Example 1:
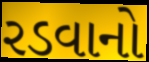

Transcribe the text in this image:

રડવાનો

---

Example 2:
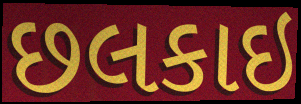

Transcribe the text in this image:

છલકાઇ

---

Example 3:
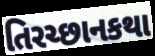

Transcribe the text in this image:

તિરચ્છાનકથા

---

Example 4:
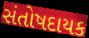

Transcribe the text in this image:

સંતોષદાયક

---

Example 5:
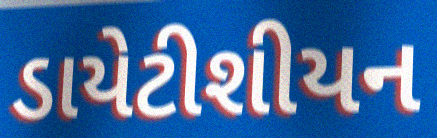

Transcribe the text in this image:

ડાયેટીશીયન